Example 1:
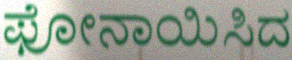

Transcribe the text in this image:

ಫೋನಾಯಿಸಿದ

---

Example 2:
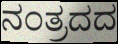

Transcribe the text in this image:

ನಂತ್ರದದ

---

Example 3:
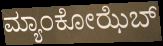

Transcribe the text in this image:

ಮ್ಯಾಂಕೋಝೆಬ್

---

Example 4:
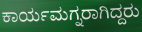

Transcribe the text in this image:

ಕಾರ್ಯಮಗ್ನರಾಗಿದ್ದರು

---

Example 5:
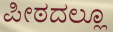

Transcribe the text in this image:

ಪೀಠದಲ್ಲೂ